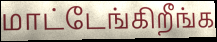
மாட்டேங்கிறீங்க